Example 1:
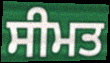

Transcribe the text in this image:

ਸੀਮਤ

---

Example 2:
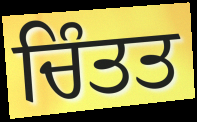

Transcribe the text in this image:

ਚਿੰਤਤ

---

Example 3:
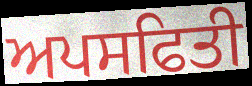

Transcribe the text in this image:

ਅਪਸਫਿਤੀ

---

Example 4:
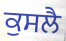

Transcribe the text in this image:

ਕੁਸਲੈ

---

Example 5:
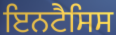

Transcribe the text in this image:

ਇਨਟੈਸਿਸ